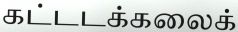
கட்டடக்கலைக்